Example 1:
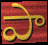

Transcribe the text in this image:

పా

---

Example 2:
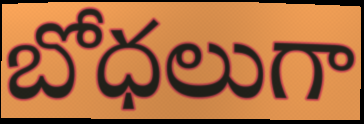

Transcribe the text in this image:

బోధలుగా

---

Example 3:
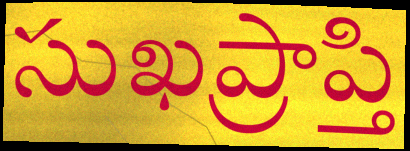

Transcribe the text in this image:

సుఖప్రాప్తి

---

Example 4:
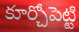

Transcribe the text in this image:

కూర్చోపెట్టి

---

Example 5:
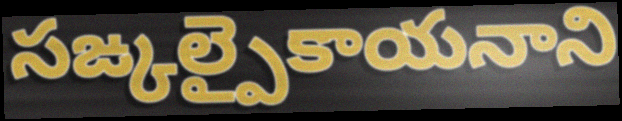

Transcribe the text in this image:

సఙ్కల్పైకాయనాని